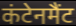
कंटेनमैंट